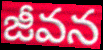
జీవన